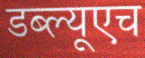
डब्ल्यूएच